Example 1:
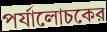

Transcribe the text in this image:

পর্যালোচকের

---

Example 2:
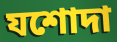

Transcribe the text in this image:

যশোদা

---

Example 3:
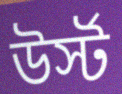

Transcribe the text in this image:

উর্স্ট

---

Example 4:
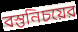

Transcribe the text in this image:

বস্তুনিচয়ের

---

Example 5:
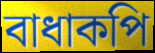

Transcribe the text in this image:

বাধাকপি